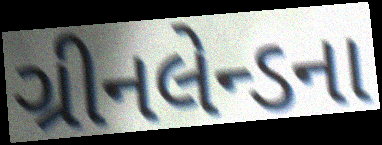
ગ્રીનલેન્ડના